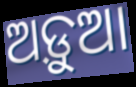
ଅଡ଼ୁଆ